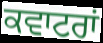
ਕਵਾਟਰਾਂ